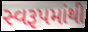
સ્વરૂપમાંથી